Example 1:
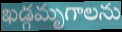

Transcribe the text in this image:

ఖడ్గమృగాలను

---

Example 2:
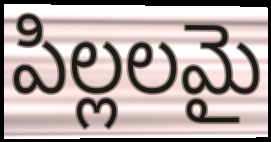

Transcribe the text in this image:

పిల్లలమై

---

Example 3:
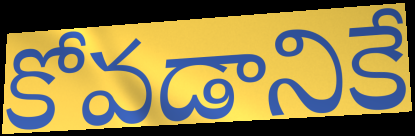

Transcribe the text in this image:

కోవడానికే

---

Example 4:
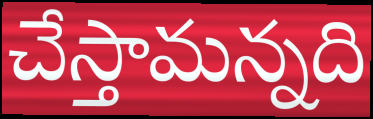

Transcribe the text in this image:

చేస్తామన్నది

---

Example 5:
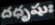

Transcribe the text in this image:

దధృషుః